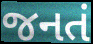
જનતં